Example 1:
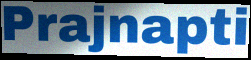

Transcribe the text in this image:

Prajnapti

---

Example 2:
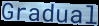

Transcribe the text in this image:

Gradual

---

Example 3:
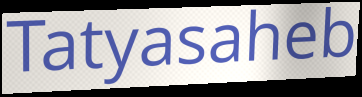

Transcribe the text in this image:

Tatyasaheb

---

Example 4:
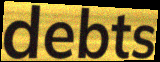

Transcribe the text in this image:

debts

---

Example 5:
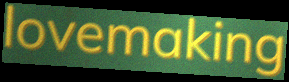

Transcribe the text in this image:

lovemaking